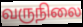
வருநிலை